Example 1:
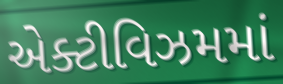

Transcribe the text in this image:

એક્ટીવિઝમમાં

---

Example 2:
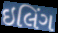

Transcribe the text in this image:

ઇલિંગ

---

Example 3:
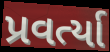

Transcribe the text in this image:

પ્રવર્ત્યા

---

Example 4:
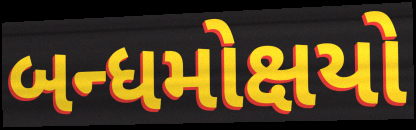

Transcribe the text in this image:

બન્ધમોક્ષયો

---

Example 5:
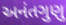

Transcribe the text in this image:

અનંતગુણુ